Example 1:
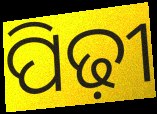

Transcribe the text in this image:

ପିଢ଼ୀ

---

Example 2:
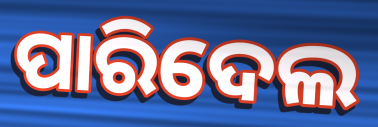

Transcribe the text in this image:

ପାରିଦେଲ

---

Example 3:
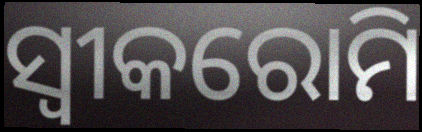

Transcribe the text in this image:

ସ୍ଵୀକରୋମି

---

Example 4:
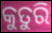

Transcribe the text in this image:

କୁତୁରି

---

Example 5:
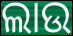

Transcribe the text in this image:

ଲାଉ